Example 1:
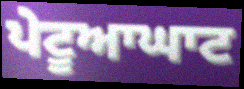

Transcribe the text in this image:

ਪੇਟੂਆਘਾਟ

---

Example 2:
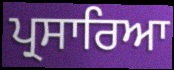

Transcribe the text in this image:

ਪ੍ਰਸਾਰਿਆ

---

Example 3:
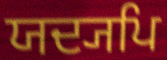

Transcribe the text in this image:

ਯਦ੍ਯਪਿ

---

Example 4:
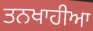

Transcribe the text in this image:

ਤਨਖਾਹੀਆ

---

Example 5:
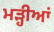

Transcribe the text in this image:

ਮੜ੍ਹੀਆਂ